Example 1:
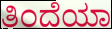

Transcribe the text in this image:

ತಿಂದೆಯಾ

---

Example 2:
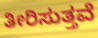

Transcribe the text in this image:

ತೀರಿಸುತ್ತವೆ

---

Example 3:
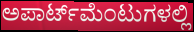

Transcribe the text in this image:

ಅಪಾರ್ಟ್‌ಮೆಂಟುಗಳಲ್ಲಿ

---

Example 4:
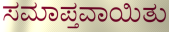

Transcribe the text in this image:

ಸಮಾಪ್ತವಾಯಿತು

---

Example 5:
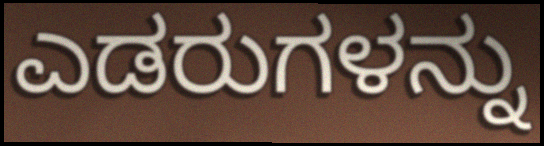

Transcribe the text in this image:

ಎಡರುಗಳನ್ನು